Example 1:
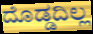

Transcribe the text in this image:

ದೊಡ್ಡದಿಲ್ಲ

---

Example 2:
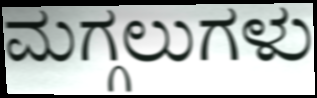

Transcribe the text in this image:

ಮಗ್ಗಲುಗಳು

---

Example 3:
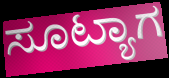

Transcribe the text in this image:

ಸೂಟ್ಯಾಗ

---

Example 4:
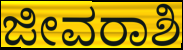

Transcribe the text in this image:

ಜೀವರಾಶಿ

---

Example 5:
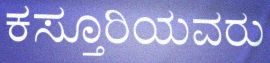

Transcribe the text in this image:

ಕಸ್ತೂರಿಯವರು